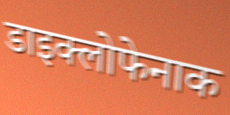
डाइक्लोफेनाक